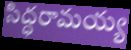
సిద్ధరామయ్య